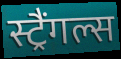
स्ट्रैंगल्स